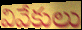
వివేకులు